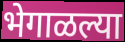
भेगाळल्या